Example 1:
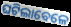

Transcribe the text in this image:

ଘଟିଲାବେଳେ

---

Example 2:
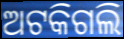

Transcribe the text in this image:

ଅଟକିଗଲି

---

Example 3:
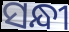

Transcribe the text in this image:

ସନ୍ଧୀ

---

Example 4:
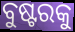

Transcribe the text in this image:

ବୁଷ୍ଟରକୁ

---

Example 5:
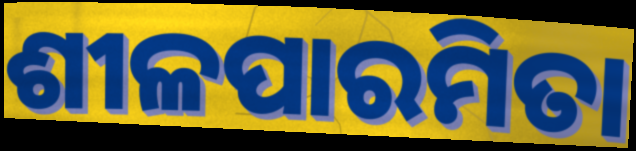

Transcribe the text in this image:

ଶୀଳପାରମିତା